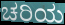
ಚರಿಯ